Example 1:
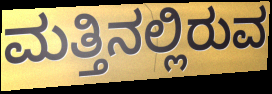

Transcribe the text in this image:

ಮತ್ತಿನಲ್ಲಿರುವ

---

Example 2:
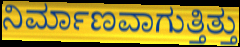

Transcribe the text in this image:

ನಿರ್ಮಾಣವಾಗುತ್ತಿತ್ತು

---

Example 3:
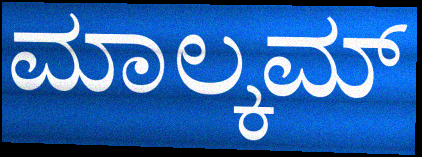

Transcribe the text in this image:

ಮಾಲ್ಕಮ್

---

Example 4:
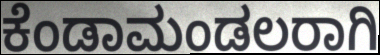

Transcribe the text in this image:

ಕೆಂಡಾಮಂಡಲರಾಗಿ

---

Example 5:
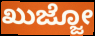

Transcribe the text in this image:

ಖುಜ್ಜೋ